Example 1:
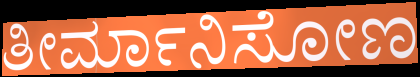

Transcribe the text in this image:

ತೀರ್ಮಾನಿಸೋಣ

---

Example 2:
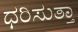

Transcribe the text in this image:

ಧರಿಸುತ್ತಾ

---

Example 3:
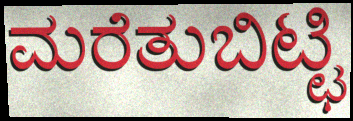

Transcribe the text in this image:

ಮರೆತುಬಿಟ್ಟಿ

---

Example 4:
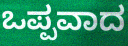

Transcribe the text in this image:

ಒಪ್ಪವಾದ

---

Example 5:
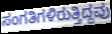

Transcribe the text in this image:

ಸಂಗತಿಗಳಿರುತ್ತಿದ್ದವು